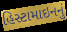
હિસ્ટામાઇનનું